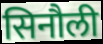
सिनौली